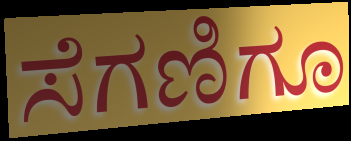
ಸೆಗಣಿಗೂ